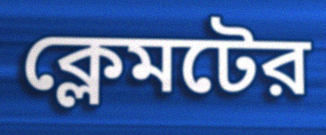
ক্লেমটের